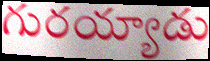
గురయ్యాడు